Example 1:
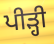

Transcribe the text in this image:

ਪੀੜ੍ਹੀ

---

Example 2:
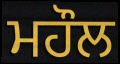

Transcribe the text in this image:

ਮਹੌਲ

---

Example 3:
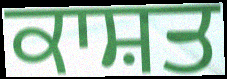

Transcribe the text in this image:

ਕਾਸ਼ਤ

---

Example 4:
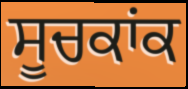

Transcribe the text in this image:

ਸੂਚਕਾਂਕ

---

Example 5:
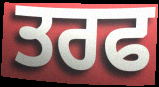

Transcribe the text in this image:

ਤਰਫ